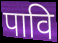
पावि